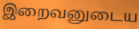
இறைவனுடைய